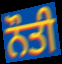
ਨੌਤੀ